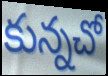
కున్నచో